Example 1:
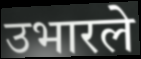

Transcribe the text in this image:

उभारले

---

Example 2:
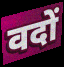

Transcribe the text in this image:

वदों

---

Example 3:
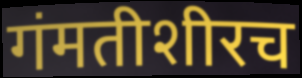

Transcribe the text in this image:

गंमतीशीरच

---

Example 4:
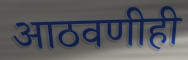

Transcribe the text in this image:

आठवणीही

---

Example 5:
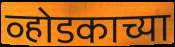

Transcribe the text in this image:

व्होडकाच्या